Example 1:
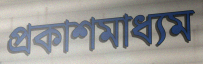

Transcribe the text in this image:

প্রকাশমাধ্যম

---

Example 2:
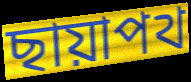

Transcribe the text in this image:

ছায়াপথ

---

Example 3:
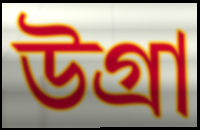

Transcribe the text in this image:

উগ্রা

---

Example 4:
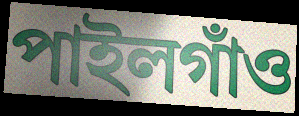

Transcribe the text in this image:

পাইলগাঁও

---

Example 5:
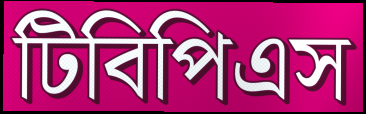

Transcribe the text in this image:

টিবিপিএস